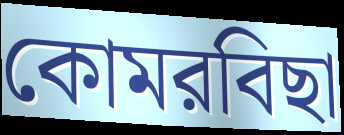
কোমরবিছা